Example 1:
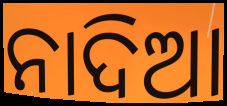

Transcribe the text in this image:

ନାଦିଆ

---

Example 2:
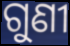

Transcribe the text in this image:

ଗୁଣୀ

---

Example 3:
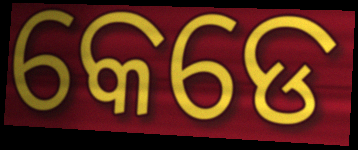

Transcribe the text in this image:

କେଡେ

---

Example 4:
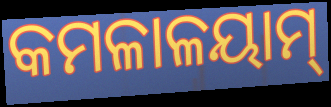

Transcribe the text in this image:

କମଳାଳୟାମ୍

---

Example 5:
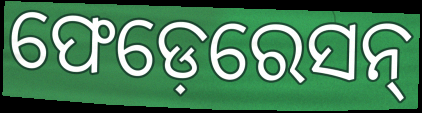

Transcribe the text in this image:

ଫେଡ଼େରେସନ୍